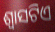
ଶ୍ଵାସଟିଏ